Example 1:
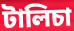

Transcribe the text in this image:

টালিচা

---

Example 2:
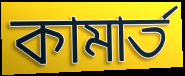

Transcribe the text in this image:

কামার্ত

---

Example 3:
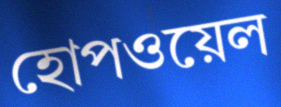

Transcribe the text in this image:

হোপওয়েল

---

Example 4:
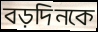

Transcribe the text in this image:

বড়দিনকে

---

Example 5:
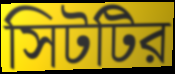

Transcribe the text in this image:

সিটটির